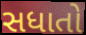
સધાતો